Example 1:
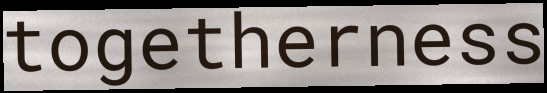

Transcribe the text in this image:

togetherness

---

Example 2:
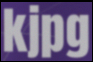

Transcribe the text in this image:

kjpg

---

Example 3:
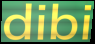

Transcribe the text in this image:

dibi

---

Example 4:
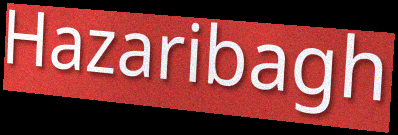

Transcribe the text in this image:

Hazaribagh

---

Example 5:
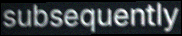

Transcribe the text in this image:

subsequently